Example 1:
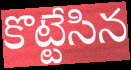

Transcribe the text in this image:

కొట్టేసిన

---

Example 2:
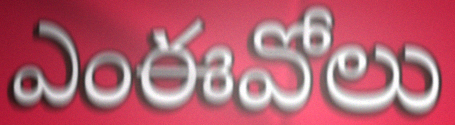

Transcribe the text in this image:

ఎంఈవోలు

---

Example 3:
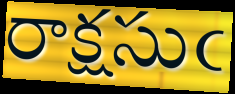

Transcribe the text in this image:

రాక్షసుఁ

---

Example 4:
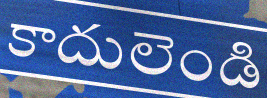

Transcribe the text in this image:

కాదులెండి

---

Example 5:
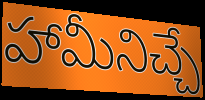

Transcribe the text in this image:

హామీనిచ్చే